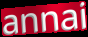
annai